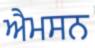
ਐਮਸਨ